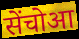
सेंचोआ